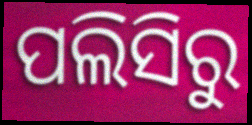
ପଲିସିରୁ